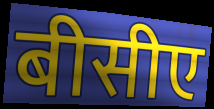
बीसीए